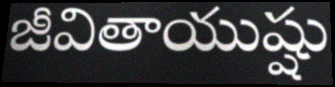
జీవితాయుష్షు